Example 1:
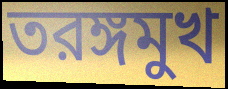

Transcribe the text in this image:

তরঙ্গমুখ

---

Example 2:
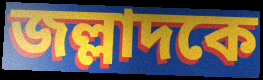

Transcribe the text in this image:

জল্লাদকে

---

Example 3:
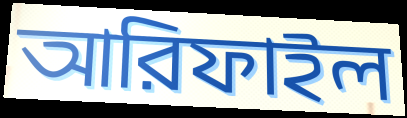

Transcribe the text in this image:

আরিফাইল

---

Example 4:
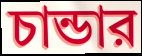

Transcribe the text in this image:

চান্ডার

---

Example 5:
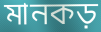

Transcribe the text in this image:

মানকড়